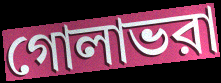
গোলাভরা